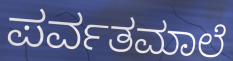
ಪರ್ವತಮಾಲೆ